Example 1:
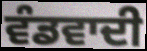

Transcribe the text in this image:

ਵੰਡਵਾਦੀ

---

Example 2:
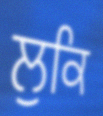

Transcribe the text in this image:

ਲੁਕਿ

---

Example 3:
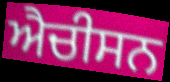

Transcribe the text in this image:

ਐਚੀਸਨ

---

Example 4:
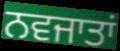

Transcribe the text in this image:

ਨਵਜਾਤਾਂ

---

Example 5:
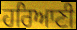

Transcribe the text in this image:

ਹਰਿਆਣੀ